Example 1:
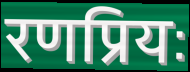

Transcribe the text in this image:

रणप्रियः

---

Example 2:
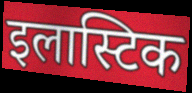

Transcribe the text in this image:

इलास्टिक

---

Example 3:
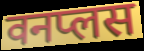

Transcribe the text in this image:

वनप्लस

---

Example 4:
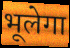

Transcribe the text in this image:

भूलेगा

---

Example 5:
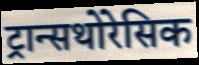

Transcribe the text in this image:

ट्रान्सथोरेसिक